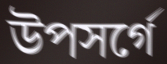
উপসর্গে